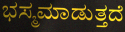
ಭಸ್ಮಮಾಡುತ್ತದೆ